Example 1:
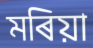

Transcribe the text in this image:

মৰিয়া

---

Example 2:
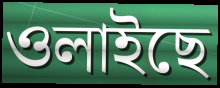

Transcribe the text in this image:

ওলাইছে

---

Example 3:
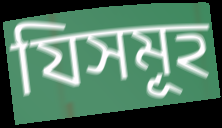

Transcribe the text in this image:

যিসমূহ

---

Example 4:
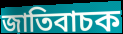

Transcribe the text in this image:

জাতিবাচক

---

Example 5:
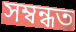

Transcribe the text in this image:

সম্বন্ধত